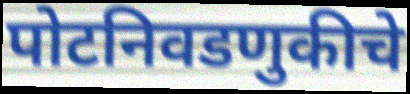
पोटनिवडणुकीचे